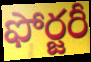
ఫోర్జరీ